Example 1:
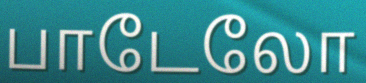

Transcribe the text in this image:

பாடேலோ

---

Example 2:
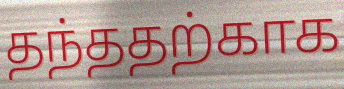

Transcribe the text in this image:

தந்ததற்காக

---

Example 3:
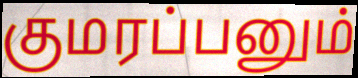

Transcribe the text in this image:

குமரப்பனும்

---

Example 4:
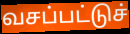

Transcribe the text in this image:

வசப்பட்டுச்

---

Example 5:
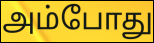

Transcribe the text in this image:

அம்போது